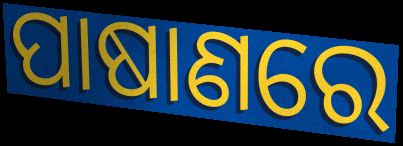
ପାଷାଣରେ